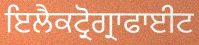
ਇਲੈਕਟ੍ਰੋਗ੍ਰਾਫਾਈਟ